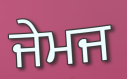
ਜੇਮਜ